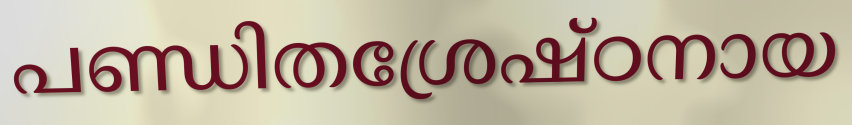
പണ്ഡിതശ്രേഷ്ഠനായ